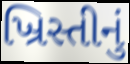
ખ્રિસ્તીનું